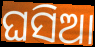
ଘସିଆ